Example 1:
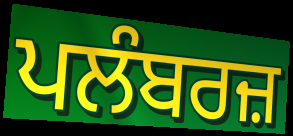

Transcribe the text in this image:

ਪਲੰਬਰਜ਼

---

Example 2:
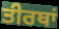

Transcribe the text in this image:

ਤੀਰਥਾਂ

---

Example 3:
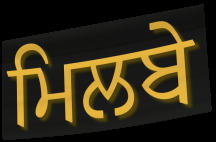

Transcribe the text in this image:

ਮਿਲਬੇ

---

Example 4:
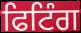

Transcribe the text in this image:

ਫਿਟਿੰਗ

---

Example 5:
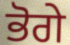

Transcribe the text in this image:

ਭੋਗੇ